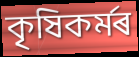
কৃষিকৰ্মৰ